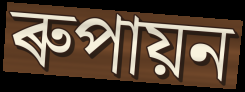
ৰুপায়ন